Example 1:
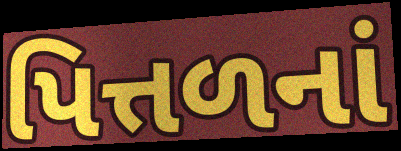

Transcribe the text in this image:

પિત્તળનાં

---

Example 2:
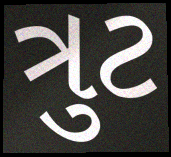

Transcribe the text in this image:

ત્રુટ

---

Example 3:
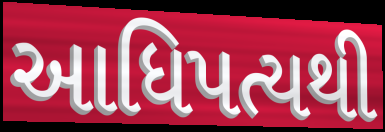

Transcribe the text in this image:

આધિપત્યથી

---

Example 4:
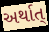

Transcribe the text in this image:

અર્થાત્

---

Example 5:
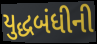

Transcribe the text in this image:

યુદ્ધબંધીની